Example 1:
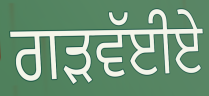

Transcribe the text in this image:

ਗੜਵੱਈਏ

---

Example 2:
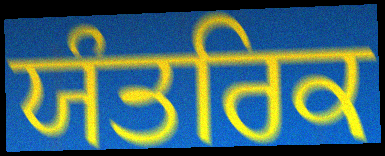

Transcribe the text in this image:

ਯੰਤਰਿਕ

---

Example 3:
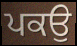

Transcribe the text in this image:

ਪਕਉ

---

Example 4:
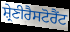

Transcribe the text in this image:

ਸ਼੍ਰੇਣੀਰੈਸਟੋਰੈਂਟ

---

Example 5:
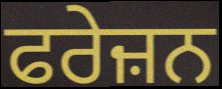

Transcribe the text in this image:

ਫਰੇਜ਼ਨ